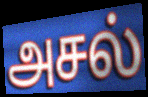
அசல்